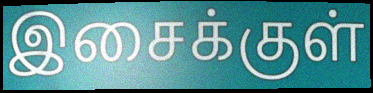
இசைக்குள்